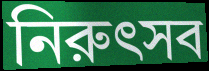
নিরুৎসব